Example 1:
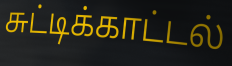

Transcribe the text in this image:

சுட்டிக்காட்டல்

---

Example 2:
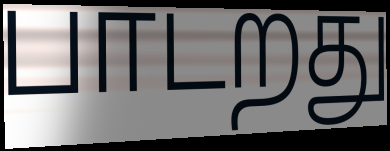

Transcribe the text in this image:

பாடறது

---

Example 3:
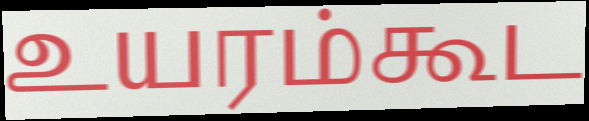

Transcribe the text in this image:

உயரம்கூட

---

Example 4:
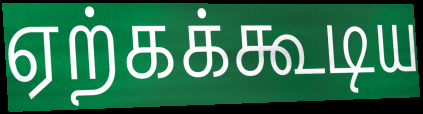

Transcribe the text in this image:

ஏற்கக்கூடிய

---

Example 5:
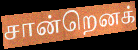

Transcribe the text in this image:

சான்றெனக்